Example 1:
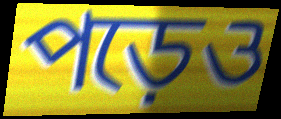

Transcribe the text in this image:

পড়েও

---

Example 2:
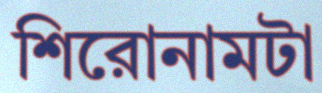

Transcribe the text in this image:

শিরোনামটা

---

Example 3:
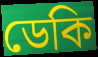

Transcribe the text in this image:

ডেকি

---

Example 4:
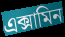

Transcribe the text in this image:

এক্সামিন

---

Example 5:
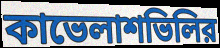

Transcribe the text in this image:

কাভেলাশভিলির